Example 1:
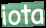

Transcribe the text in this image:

iota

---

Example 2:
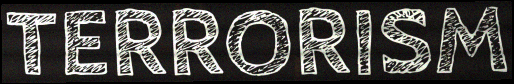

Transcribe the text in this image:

TERRORISM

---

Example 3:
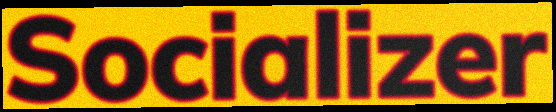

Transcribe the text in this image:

Socializer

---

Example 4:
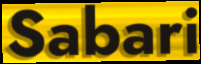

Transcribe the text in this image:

Sabari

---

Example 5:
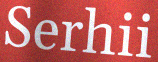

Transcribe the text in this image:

Serhii